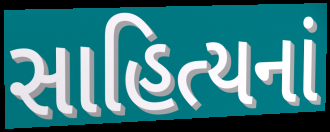
સાહિત્યનાં